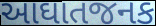
આઘાતજનક